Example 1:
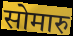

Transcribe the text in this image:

सोमारु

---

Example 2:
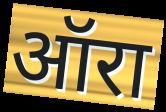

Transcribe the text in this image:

ऑरा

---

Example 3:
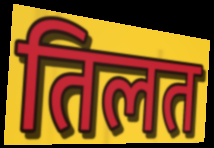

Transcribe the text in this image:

तिलत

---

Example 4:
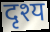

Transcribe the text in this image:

दृश्य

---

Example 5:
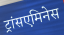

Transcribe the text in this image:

ट्रांसएमिनेस